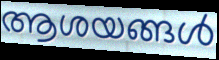
ആശയങ്ങൾ